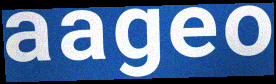
aageo